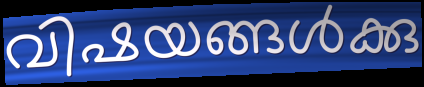
വിഷയങ്ങൾക്കു